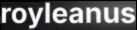
royleanus